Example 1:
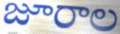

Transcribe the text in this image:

జూరాల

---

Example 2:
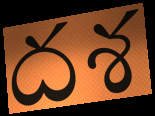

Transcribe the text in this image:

దశ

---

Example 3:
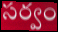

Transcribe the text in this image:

సర్వం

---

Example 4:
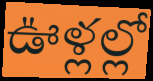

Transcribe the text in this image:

ఊళ్లల్లో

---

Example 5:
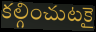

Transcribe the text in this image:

కల్గించుటకై